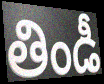
తిండీ